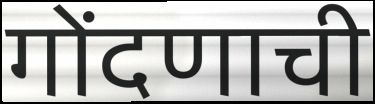
गोंदणाची